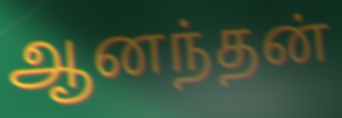
ஆனந்தன்